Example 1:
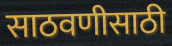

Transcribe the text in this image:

साठवणीसाठी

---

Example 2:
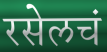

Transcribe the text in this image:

रसेलचं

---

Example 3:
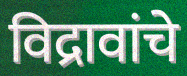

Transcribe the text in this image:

विद्रावांचे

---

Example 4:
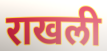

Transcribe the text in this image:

राखली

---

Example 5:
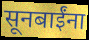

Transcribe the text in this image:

सूनबाईंना